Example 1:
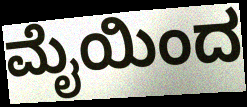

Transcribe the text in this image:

ಮೈಯಿಂದ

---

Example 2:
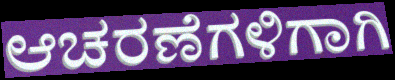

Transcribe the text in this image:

ಆಚರಣೆಗಳಿಗಾಗಿ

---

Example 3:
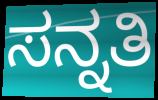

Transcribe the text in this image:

ಸನ್ನತಿ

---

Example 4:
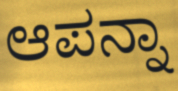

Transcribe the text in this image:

ಆಪನ್ನಾ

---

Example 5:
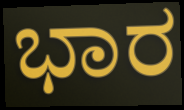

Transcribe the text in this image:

ಭಾರ